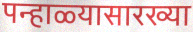
पन्हाळ्यासारख्या